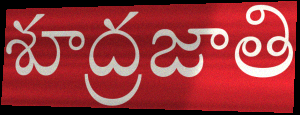
శూద్రజాతి